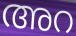
അറ